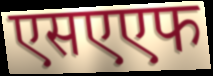
एसएएफ